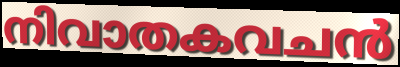
നിവാതകവചൻ